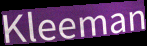
Kleeman